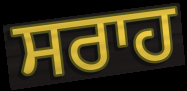
ਸਰਾਹ